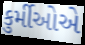
કુર્મીઓએ